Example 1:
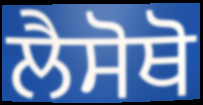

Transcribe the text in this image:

ਲੈਸੋਥੋ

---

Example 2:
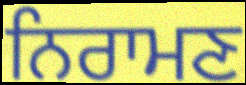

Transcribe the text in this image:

ਨਿਰਾਮਣ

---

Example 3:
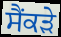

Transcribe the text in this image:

ਸੈਂਕੜੇ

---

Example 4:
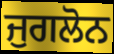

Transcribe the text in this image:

ਜੁਗਲੋਨ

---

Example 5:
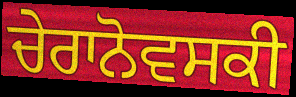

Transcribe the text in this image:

ਚੇਰਾਨੋਵਸਕੀ